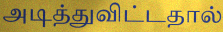
அடித்துவிட்டதால்